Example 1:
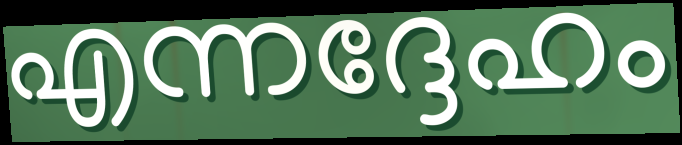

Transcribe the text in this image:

എന്നദ്ദേഹം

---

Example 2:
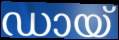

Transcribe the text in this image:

ഡായ്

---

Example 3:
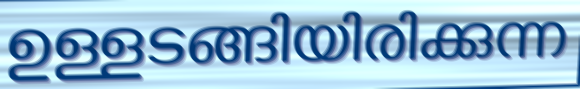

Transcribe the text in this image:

ഉള്ളടങ്ങിയിരിക്കുന്ന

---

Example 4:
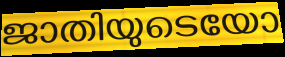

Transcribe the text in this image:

ജാതിയുടെയോ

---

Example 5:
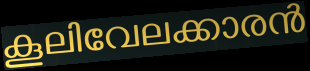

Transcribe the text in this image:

കൂലിവേലക്കാരൻ